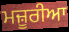
ਮਜ਼ੂਰੀਆ